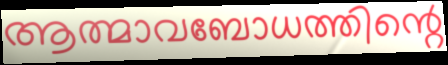
ആത്മാവബോധത്തിന്റെ